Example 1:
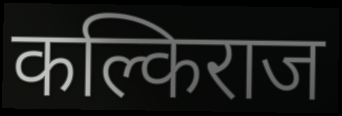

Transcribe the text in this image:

कल्किराज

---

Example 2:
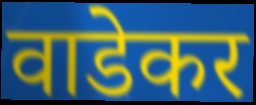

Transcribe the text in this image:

वाडेकर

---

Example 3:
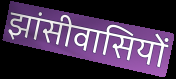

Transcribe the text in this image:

झांसीवासियों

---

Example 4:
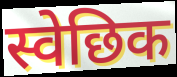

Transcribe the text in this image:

स्वेछिक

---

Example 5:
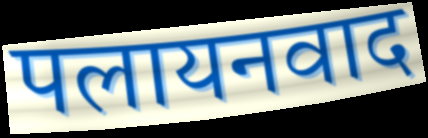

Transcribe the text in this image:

पलायनवाद